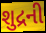
શુદ્રની